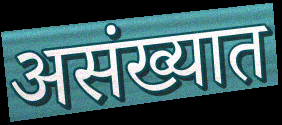
असंख्यात